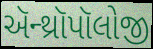
ઍન્થ્રૉપૉલોજી